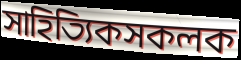
সাহিত্যিকসকলক